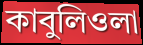
কাবুলিওলা